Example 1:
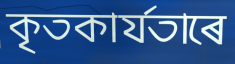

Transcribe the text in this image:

কৃতকাৰ্যতাৰে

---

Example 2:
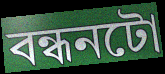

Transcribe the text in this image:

বন্ধনটো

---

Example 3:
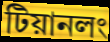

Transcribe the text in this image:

টিয়ানলং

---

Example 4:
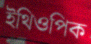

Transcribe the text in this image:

ইথিওপিক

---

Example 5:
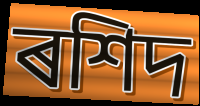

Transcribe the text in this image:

ৰশিদ